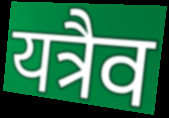
यत्रैव